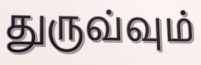
துருவ்வும்